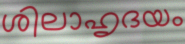
ശിലാഹൃദയം